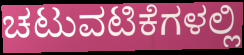
ಚಟುವಟಿಕೆಗಳಲ್ಲಿ